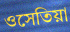
ওসেতিয়া